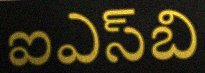
ఐఎస్‌బి